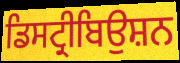
ਡਿਸਟ੍ਰੀਬਿਉਸ਼ਨ